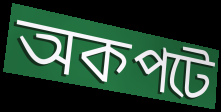
অকপটে